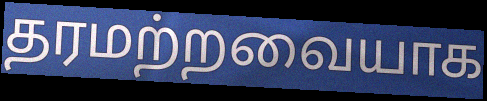
தரமற்றவையாக